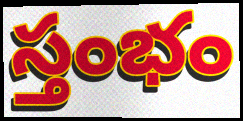
స్తంభం